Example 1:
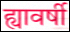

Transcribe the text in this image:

ह्यावर्षी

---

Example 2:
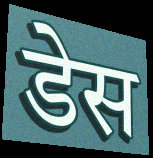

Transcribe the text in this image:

डेस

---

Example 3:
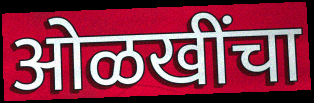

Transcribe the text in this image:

ओळखींचा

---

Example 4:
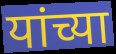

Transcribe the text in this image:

यांच्‍या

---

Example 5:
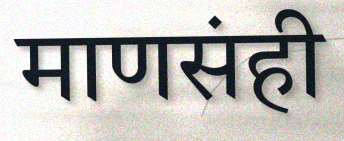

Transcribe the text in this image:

माणसंही